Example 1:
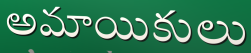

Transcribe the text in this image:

అమాయికులు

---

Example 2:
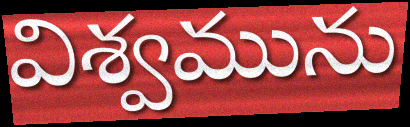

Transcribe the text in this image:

విశ్వమును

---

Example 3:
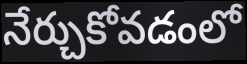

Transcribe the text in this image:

నేర్చుకోవడంలో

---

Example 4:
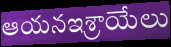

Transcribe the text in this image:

ఆయనఇశ్రాయేలు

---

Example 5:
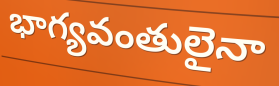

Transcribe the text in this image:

భాగ్యవంతులైనా